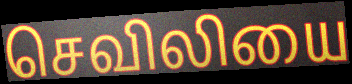
செவிலியை